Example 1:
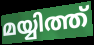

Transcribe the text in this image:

മയ്യിത്ത്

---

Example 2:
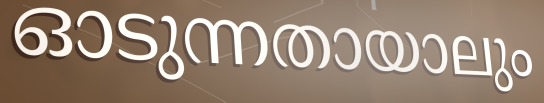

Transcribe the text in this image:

ഓടുന്നതായാലും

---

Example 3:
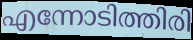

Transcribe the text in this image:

എന്നോടിത്തിരി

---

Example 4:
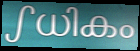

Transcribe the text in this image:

ഽധികം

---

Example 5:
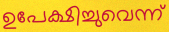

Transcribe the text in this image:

ഉപേക്ഷിച്ചുവെന്ന്